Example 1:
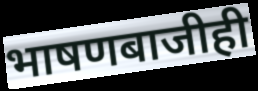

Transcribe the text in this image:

भाषणबाजीही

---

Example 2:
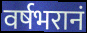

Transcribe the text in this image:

वर्षभरानं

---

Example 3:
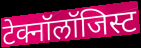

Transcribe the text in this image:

टेक्नॉलॉजिस्ट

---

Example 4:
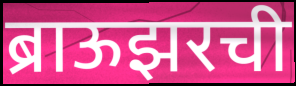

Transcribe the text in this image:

ब्राऊझरची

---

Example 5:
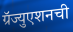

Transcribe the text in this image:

ग्रॅज्युएशनची